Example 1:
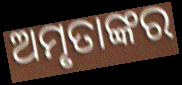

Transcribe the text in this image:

ଅମୃତାଙ୍କର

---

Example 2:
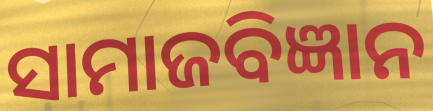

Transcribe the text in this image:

ସାମାଜବିଜ୍ଞାନ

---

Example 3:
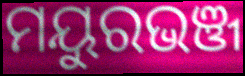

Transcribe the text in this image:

ମୟୁରଭଞ୍ଜ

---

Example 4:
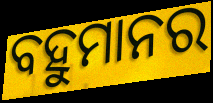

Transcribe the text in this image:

ବହୁମାନର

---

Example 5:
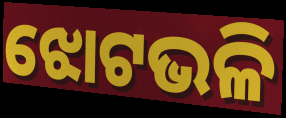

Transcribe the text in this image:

ଝୋଟଭଳି